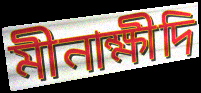
মীনাক্ষীদি